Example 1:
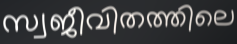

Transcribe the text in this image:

സ്വജീവിതത്തിലെ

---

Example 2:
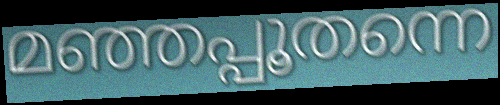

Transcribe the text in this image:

മഞ്ഞപ്പൂതന്നെ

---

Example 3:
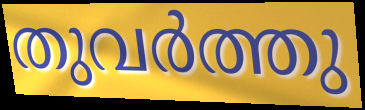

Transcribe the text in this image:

തുവർത്തു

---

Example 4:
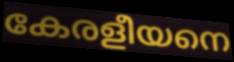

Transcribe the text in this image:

കേരളീയനെ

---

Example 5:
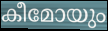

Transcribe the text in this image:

കീമോയും